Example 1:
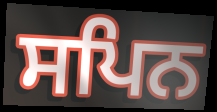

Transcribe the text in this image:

ਸਪਿਨ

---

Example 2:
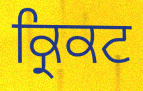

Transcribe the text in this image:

ਕ੍ਰਿਕਟ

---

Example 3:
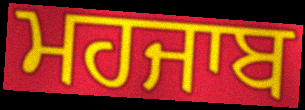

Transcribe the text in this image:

ਮਹਜਾਬ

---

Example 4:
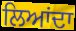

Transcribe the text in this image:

ਲਿਆਂਦਾ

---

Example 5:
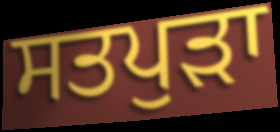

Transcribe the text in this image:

ਸਤਪੁੜਾ